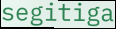
segitiga